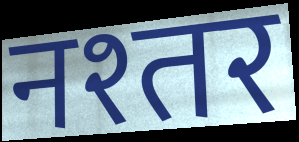
नश्तर